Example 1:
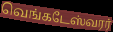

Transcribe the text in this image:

வெங்கடேஸ்வரர்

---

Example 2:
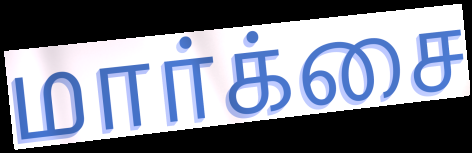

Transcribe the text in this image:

மார்க்சை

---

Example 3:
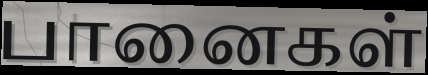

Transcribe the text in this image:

பானைகள்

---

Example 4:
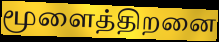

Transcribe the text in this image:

மூளைத்திறனை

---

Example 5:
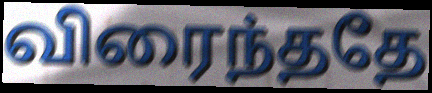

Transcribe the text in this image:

விரைந்ததே